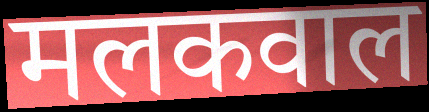
मलकवाल